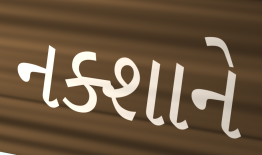
નક્શાને